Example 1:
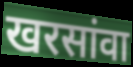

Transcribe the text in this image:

खरसांवा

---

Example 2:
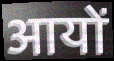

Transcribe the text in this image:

आयों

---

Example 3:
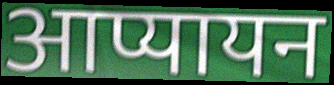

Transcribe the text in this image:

आप्यायन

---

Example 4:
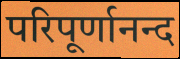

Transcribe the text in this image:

परिपूर्णानन्द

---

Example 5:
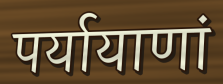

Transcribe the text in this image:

पर्यायाणां